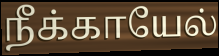
நீக்காயேல்